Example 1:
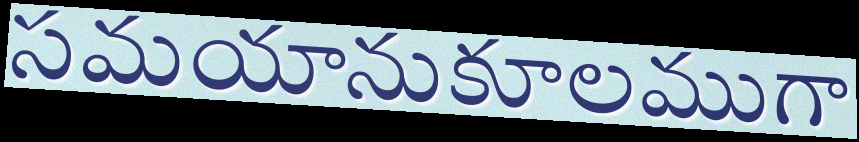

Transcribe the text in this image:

సమయానుకూలముగా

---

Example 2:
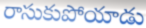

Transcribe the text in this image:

రాసుకుపోయాడు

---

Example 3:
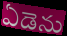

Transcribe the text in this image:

ఏడెను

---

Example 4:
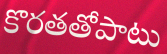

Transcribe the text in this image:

కొరతతోపాటు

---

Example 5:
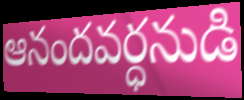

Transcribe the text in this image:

ఆనందవర్ధనుడి